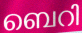
ബെറി